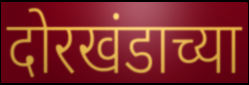
दोरखंडाच्या